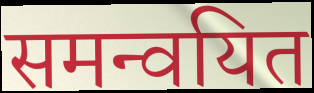
समन्वयित